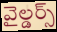
వైల్డర్స్